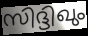
സിദ്ദിഖും